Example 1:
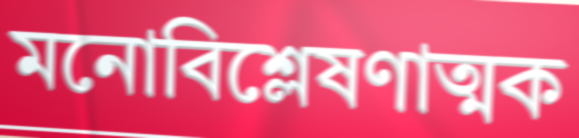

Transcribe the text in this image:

মনোবিশ্লেষণাত্মক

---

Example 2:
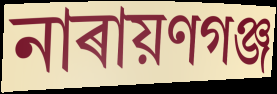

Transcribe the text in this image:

নাৰায়ণগঞ্জ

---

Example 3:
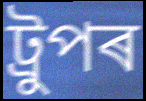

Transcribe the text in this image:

ট্ৰুপৰ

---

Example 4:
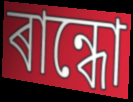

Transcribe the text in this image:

ৰান্ধো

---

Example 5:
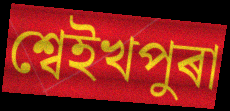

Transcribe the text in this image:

শ্বেইখপুৰা